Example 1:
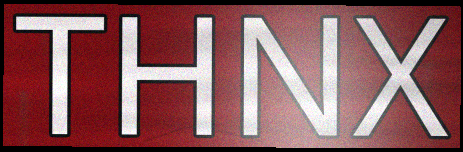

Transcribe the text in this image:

THNX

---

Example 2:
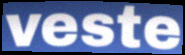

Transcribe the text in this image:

veste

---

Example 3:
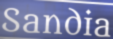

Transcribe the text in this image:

Sandia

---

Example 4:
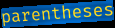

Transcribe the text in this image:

parentheses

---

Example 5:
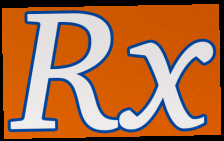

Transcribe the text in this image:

Rx